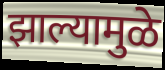
झाल्यामुळे